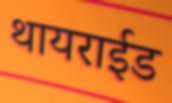
थायराईड